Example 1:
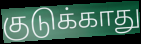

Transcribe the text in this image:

குடுக்காது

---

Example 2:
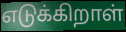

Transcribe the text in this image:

எடுக்கிறாள்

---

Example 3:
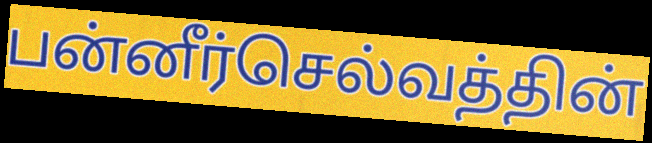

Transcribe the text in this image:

பன்னீர்செல்வத்தின்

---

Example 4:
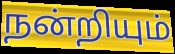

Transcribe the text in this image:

நன்றியும்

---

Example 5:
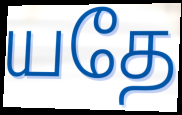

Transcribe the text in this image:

யதே